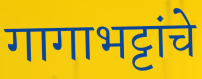
गागाभट्टांचे